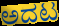
ಅದಟ